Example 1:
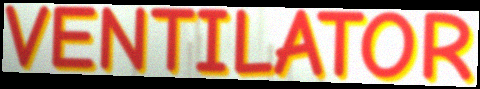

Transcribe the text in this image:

VENTILATOR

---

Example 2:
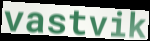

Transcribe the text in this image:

vastvik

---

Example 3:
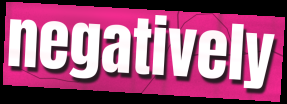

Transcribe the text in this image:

negatively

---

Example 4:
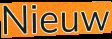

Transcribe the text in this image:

Nieuw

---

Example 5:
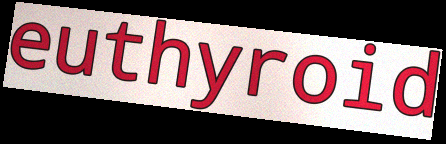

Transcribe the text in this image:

euthyroid